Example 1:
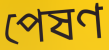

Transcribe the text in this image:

পেষণ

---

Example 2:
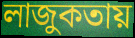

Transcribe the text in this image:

লাজুকতায়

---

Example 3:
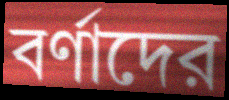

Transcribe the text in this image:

বর্ণাদের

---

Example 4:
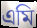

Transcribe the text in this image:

এমি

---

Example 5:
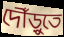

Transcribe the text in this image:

দৌঁড়ুতে